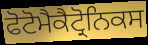
ਫੋਟੋਮੈਕੈਟ੍ਰੋਨਿਕਸ